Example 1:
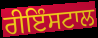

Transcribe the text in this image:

ਰੀਇੰਸਟਾਲ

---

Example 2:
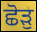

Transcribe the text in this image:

ਛੋੜੁ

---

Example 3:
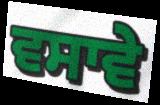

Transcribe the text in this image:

ਵਸਾਵੇ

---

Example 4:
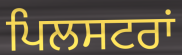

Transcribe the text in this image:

ਪਿਲਸਟਰਾਂ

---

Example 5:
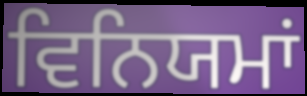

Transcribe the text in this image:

ਵਿਨਿਯਮਾਂ